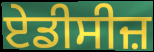
ਏਡੀਸੀਜ਼